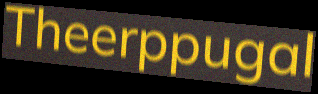
Theerppugal